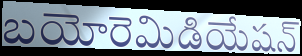
బయోరెమిడియేషన్